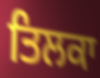
ਤਿਲਕਾ